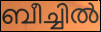
ബീച്ചിൽ